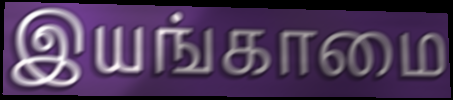
இயங்காமை